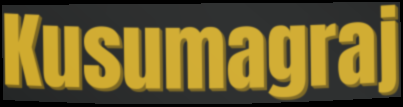
Kusumagraj